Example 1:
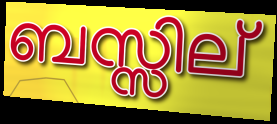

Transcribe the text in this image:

ബസ്സില്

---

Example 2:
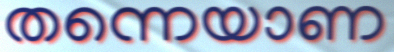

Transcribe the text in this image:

തന്നെയാണ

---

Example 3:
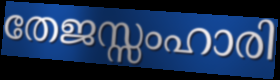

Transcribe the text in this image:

തേജസ്സംഹാരി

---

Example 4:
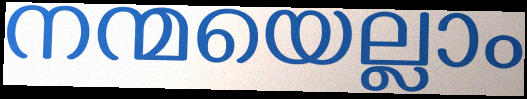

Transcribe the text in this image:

നന്മയെല്ലാം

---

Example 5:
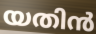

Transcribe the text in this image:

യതിൻ